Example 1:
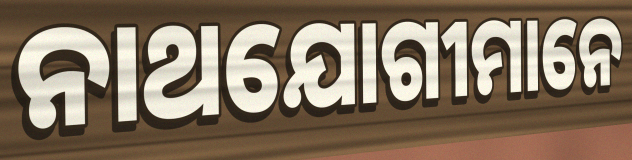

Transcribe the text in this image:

ନାଥଯୋଗୀମାନେ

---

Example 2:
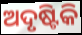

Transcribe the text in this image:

ଅଦୃଷ୍ଟିକି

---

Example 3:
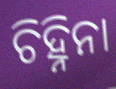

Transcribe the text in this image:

ଚିହ୍ନିନା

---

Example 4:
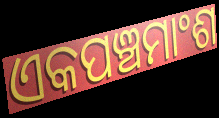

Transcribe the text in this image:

ଏକପଞ୍ଚମାଂଶ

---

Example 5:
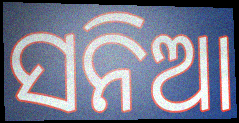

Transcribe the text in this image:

ସନିଆ